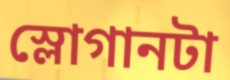
স্লোগানটা